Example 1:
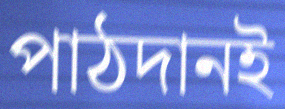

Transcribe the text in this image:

পাঠদানই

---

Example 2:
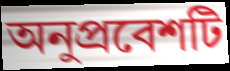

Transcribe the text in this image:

অনুপ্রবেশটি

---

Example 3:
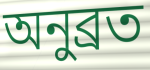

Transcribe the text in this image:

অনুব্রত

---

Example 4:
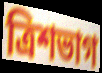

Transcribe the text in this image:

ত্রিশভাগ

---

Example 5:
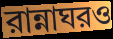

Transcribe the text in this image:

রান্নাঘরও